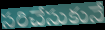
సరిచేసుకునే